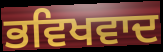
ਭਵਿਖਵਾਦ